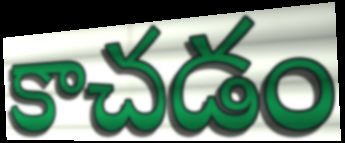
కాచడం